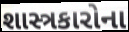
શાસ્ત્રકારોના